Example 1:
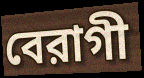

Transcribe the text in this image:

বেরাগী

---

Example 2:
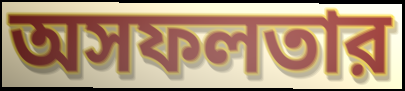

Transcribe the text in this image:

অসফলতার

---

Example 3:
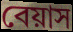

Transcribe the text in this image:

বেয়াস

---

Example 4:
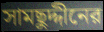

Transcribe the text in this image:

সামছুদ্দীনের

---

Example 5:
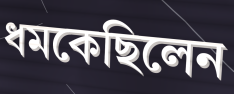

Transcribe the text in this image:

ধমকেছিলেন